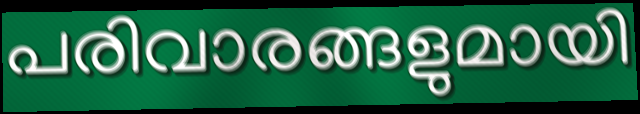
പരിവാരങ്ങളുമായി